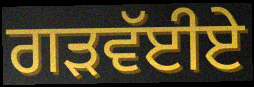
ਗੜਵੱਈਏ